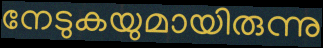
നേടുകയുമായിരുന്നു